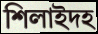
শিলাইদহ